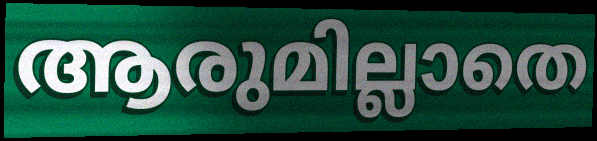
ആരുമില്ലാതെ